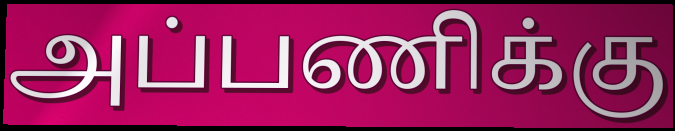
அப்பணிக்கு